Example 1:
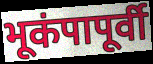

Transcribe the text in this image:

भूकंपापूर्वी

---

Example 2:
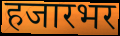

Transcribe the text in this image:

हजारभर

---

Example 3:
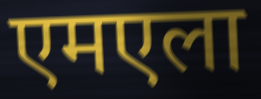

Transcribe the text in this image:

एमएला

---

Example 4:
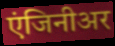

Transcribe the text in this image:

एंजिनीअर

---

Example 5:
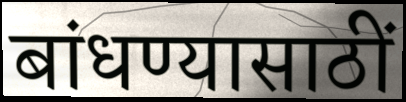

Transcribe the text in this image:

बांधण्यासाठीं